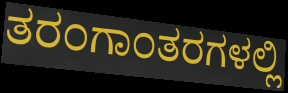
ತರಂಗಾಂತರಗಳಲ್ಲಿ